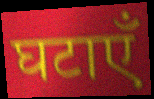
घटाएँ